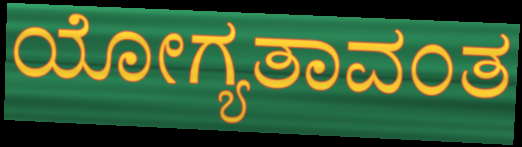
ಯೋಗ್ಯತಾವಂತ